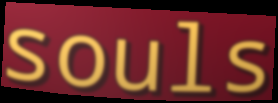
souls